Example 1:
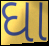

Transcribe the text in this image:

ઘા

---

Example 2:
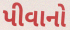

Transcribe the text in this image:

પીવાનો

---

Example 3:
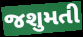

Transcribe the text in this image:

જશુમતી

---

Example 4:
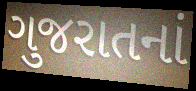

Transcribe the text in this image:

ગુજરાતનાં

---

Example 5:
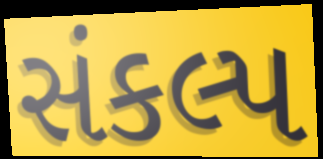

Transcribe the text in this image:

સંકલ્પ